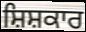
ਸ਼ਿਸ਼ਕਾਰ